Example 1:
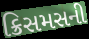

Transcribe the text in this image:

ક્રિસમસની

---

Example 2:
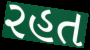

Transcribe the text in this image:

રહત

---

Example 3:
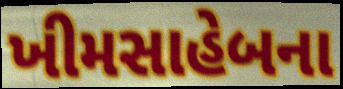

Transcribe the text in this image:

ખીમસાહેબના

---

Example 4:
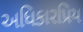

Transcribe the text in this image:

અધિકારપ્રિય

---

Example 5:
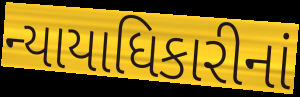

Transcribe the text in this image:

ન્યાયાધિકારીનાં